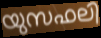
യുസഫലി